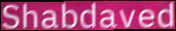
Shabdaved